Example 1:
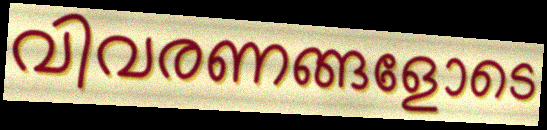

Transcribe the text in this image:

വിവരണങ്ങളോടെ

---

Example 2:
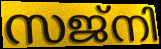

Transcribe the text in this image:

സജ്നി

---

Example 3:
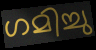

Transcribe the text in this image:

ഗമിച്ചു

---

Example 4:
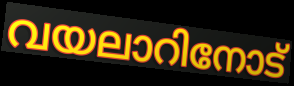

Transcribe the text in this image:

വയലാറിനോട്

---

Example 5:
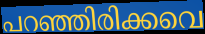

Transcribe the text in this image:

പറഞ്ഞിരിക്കവെ